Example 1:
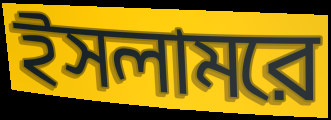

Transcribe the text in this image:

ইসলামরে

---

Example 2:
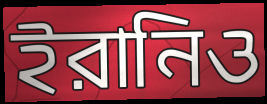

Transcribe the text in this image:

ইরানিও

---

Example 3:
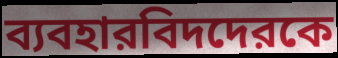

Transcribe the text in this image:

ব্যবহারবিদদেরকে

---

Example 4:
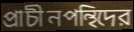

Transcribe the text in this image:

প্রাচীনপন্থিদের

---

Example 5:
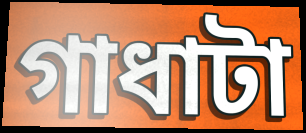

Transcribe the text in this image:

গাধাটা